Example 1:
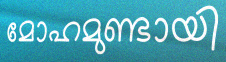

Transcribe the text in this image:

മോഹമുണ്ടായി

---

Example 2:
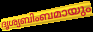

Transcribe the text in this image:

ദൃശ്യബിംബമായും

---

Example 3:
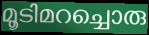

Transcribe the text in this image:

മൂടിമറച്ചൊരു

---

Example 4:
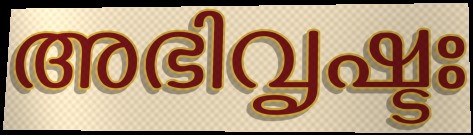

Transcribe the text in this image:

അഭിവൃഷ്ടഃ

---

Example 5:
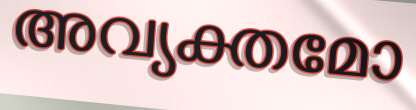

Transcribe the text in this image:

അവ്യക്തമോ